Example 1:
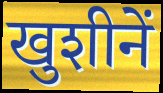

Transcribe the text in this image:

खुशीनें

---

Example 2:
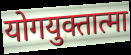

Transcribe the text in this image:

योगयुक्तात्मा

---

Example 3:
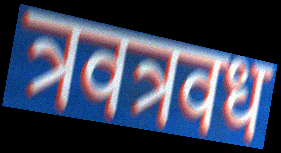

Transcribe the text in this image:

त्रवत्रवध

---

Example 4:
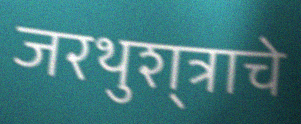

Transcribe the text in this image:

जरथुश्त्राचे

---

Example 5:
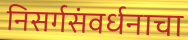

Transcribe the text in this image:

निसर्गसंवर्धनाचा